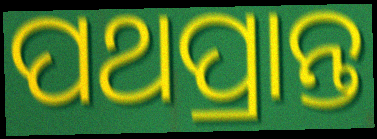
ପଥପ୍ରାନ୍ତ